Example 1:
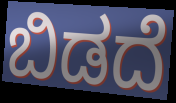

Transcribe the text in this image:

ಬಿಡದೆ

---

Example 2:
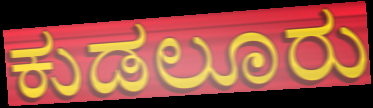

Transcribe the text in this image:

ಕುಡಲೂರು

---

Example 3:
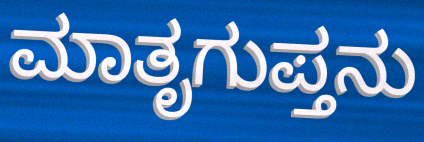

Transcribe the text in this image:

ಮಾತೃಗುಪ್ತನು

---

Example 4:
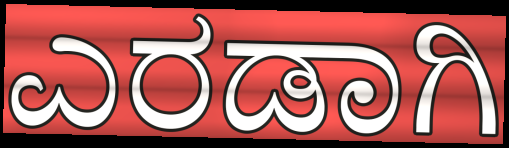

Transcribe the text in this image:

ಎರಡಾಗಿ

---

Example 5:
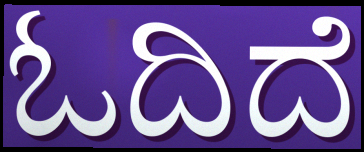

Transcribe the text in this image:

ಓದಿದೆ